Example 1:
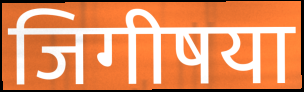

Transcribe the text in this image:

जिगीषया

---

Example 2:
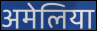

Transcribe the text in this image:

अमेलिया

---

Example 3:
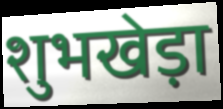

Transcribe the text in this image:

शुभखेड़ा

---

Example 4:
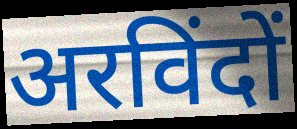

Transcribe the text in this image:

अरविंदों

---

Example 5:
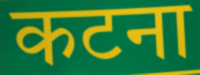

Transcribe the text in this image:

कटना